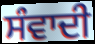
ਸੰਵਾਦੀ